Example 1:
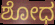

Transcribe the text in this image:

ಶೋಧ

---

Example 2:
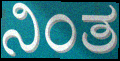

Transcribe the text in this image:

ನಿಂತ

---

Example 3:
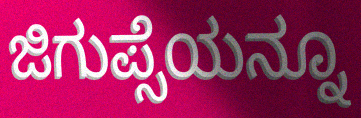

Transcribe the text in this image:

ಜಿಗುಪ್ಸೆಯನ್ನೂ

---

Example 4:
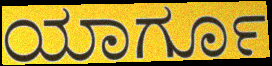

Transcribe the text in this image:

ಯಾರ್ಗೂ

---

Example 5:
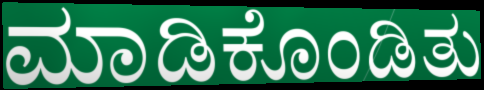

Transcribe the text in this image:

ಮಾಡಿಕೊಂಡಿತು